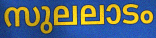
സുലലാടം